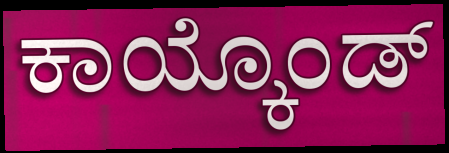
ಕಾಯ್ಕೊಂಡ್